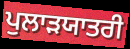
ਪੁਲਾੜਯਾਤਰੀ